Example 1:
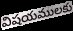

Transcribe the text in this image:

విషయములకు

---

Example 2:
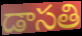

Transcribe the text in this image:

డాసతి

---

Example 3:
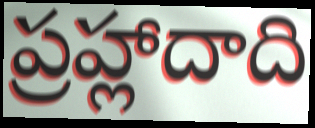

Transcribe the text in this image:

ప్రహ్లాదాది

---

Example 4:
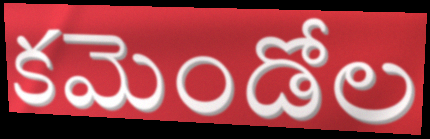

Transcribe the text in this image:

కమెండోల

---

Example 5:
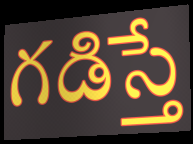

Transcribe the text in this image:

గడిస్తే